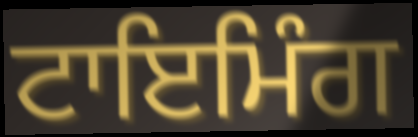
ਟਾਇਮਿੰਗ